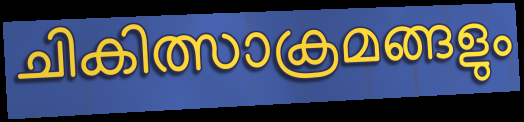
ചികിത്സാക്രമങ്ങളും